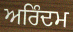
ਅਰਿੰਦਮ